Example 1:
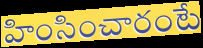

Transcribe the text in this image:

హింసించారంటే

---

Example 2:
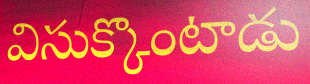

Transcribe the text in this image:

విసుక్కొంటాడు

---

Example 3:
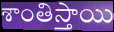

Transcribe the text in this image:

శాంతిస్తాయి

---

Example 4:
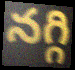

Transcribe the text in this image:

నగ్గి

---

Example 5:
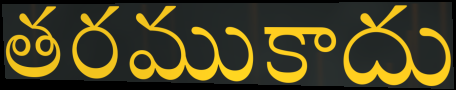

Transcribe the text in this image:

తరముకాదు